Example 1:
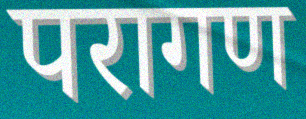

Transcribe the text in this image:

परागण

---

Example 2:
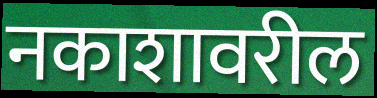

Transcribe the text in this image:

नकाशावरील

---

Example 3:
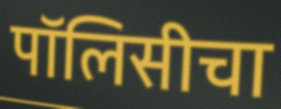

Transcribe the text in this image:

पॉलिसीचा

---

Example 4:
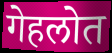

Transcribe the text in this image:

गेहलोत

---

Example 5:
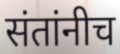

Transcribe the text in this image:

संतांनीच